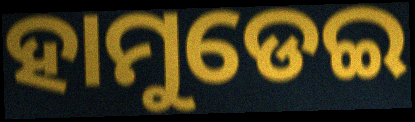
ହାମୁଡେଇ